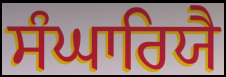
ਸੰਘਾਰਿਯੈ